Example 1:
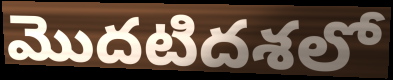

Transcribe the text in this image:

మొదటిదశలో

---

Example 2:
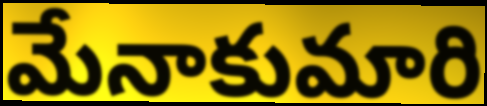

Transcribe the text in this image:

మేనాకుమారి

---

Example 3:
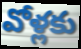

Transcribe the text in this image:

వోళ్లకు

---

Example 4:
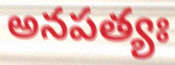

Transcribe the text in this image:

అనపత్యః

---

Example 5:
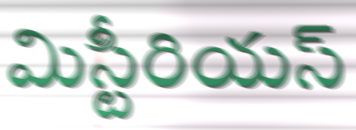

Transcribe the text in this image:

మిస్టీరియస్